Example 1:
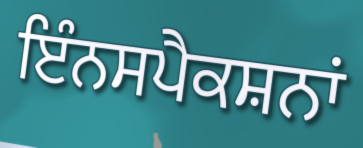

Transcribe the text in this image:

ਇੰਨਸਪੈਕਸ਼ਨਾਂ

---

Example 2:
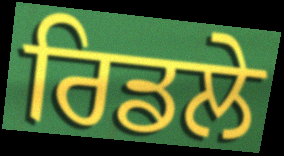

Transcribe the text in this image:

ਰਿਡਲੇ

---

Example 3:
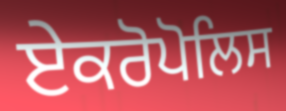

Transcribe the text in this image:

ਏਕਰੋਪੋਲਿਸ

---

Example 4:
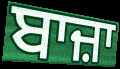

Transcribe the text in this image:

ਬਾਜ਼ਾ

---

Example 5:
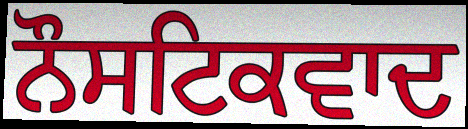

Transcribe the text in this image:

ਨੌਸਟਿਕਵਾਦ